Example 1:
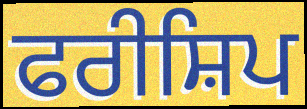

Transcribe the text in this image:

ਫਰੀਸ਼ਿਪ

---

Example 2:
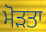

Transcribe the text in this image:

ਮੋੜਤਾ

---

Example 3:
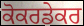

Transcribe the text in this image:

ਕੋਕਰਡੇਕਰ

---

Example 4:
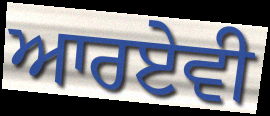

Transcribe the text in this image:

ਆਰਏਵੀ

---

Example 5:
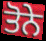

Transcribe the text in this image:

ਤੋਨੇ